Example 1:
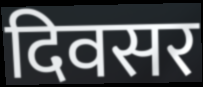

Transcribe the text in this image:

दिवसर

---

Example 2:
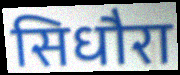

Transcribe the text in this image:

सिधौरा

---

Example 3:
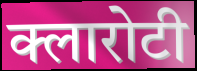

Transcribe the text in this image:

क्लारोटी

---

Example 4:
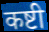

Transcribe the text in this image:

कष्टी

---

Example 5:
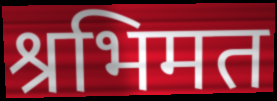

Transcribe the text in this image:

श्रभिमत